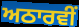
ਅਠਾਰਵੀਂ